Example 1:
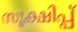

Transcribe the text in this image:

സൂക്ഷിപ്പ്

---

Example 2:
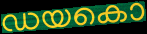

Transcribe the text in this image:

ഡയകൊ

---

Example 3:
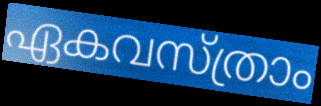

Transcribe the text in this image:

ഏകവസ്ത്രാം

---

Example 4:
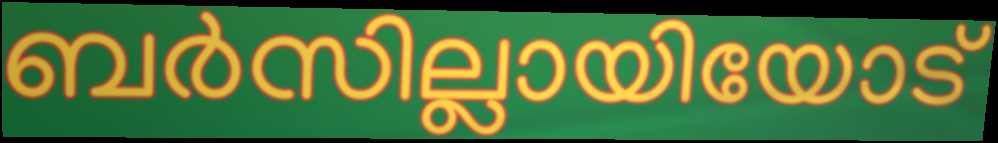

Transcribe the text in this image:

ബർസില്ലായിയോട്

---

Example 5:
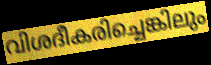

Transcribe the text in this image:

വിശദീകരിച്ചെങ്കിലും